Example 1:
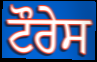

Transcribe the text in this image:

ਟੌਰੇਸ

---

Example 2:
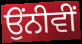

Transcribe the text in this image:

ਉੰਨੀਵੀਂ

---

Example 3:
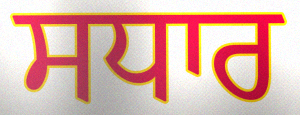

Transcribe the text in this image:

ਸਧਾਰ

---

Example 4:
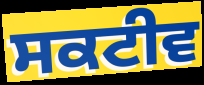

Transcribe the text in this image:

ਸਕਟੀਵ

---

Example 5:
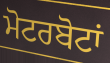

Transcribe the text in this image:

ਮੋਟਰਬੋਟਾਂ